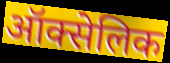
ऑक्सेलिक